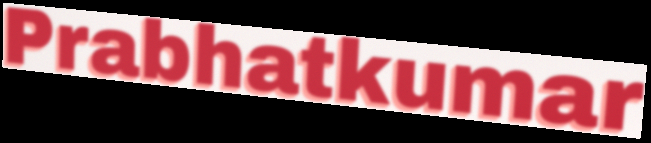
Prabhatkumar